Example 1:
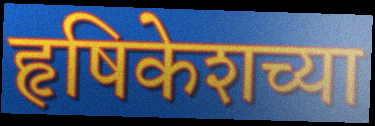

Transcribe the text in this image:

हृषिकेशच्या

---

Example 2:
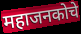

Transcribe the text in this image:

महाजनकोचे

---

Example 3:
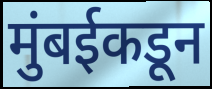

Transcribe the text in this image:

मुंबईकडून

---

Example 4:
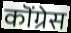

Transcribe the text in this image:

कॊंग्रेस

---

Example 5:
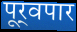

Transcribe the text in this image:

पूर्वपार